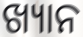
ଖ୍ୟାନ